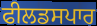
ਫੀਲਡਸਪਾਰ